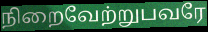
நிறைவேற்றுபவரே